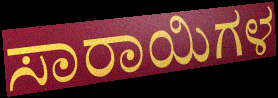
ಸಾರಾಯಿಗಳ